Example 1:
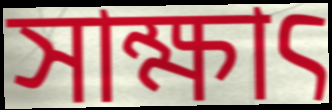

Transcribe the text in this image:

সাক্ষাৎ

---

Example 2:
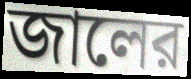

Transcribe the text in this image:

জালের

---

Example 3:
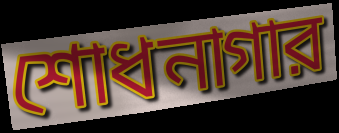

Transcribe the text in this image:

শোধনাগার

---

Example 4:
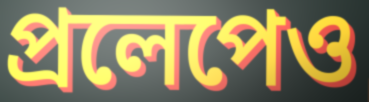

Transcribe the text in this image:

প্রলেপেও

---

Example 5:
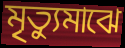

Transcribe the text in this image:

মৃত্যুমাঝে